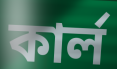
কাৰ্ল